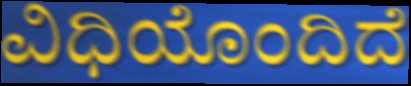
ವಿಧಿಯೊಂದಿದೆ